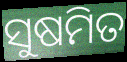
ସୁଷମିତ